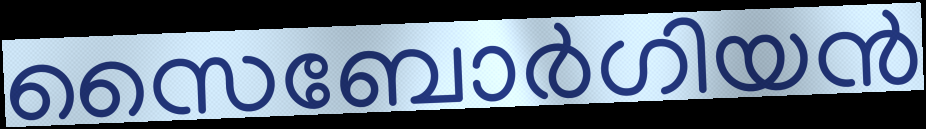
സൈബോർഗിയൻ